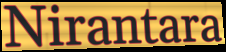
Nirantara